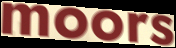
moors